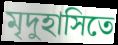
মৃদুহাসিতে